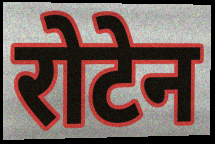
रोटेन